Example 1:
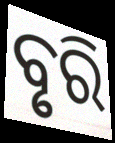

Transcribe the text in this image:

ବୃରି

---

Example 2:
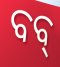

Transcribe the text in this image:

ବବ୍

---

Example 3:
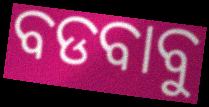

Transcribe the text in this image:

ବଡବାବୁ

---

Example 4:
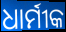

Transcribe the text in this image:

ଧାର୍ମୀକ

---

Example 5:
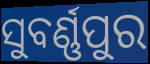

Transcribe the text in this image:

ସୁବର୍ଣ୍ଣପୁର